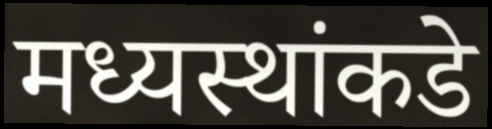
मध्यस्थांकडे